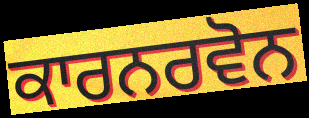
ਕਾਰਨਰਵੋਨ